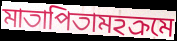
মাতাপিতামহক্রমে